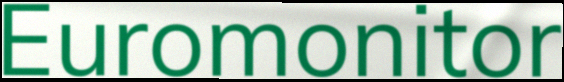
Euromonitor